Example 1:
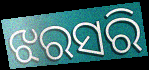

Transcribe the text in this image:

ଝରସରି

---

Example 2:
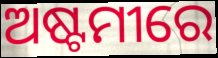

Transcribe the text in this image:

ଅଷ୍ଟମୀରେ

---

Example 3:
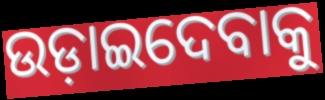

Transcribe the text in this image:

ଉଡ଼ାଇଦେବାକୁ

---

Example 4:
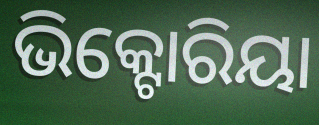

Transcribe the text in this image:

ଭିକ୍ଟୋରିୟା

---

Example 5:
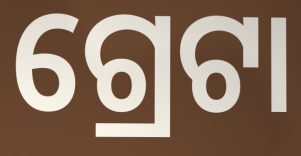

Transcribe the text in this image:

ଗ୍ରେଟା